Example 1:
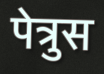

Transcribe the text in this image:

पेत्रुस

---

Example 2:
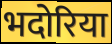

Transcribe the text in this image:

भदोरिया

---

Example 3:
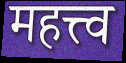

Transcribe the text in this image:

महत्त्व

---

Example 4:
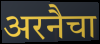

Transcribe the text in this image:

अरनैचा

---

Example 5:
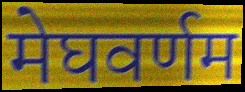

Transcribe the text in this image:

मेघवर्णम